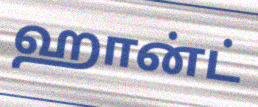
ஹான்ட்